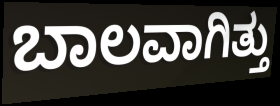
ಬಾಲವಾಗಿತ್ತು